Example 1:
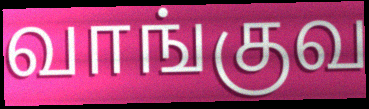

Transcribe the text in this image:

வாங்குவ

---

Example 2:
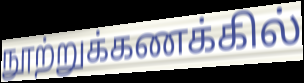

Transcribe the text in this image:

நூற்றுக்கணக்கில்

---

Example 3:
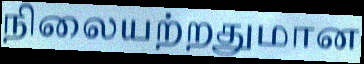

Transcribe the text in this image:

நிலையற்றதுமான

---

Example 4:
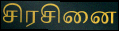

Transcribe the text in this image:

சிரசினை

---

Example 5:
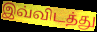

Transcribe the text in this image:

இவ்விடத்து